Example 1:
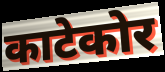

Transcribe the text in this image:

काटेकोर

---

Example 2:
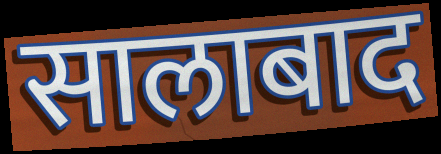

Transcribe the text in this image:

सालाबाद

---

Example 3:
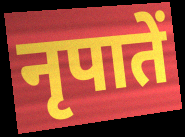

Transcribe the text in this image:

नृपातें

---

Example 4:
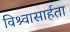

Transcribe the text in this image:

विश्र्वासार्हता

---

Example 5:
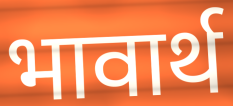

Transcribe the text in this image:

भावार्थ